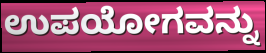
ಉಪಯೋಗವನ್ನು